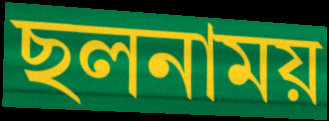
ছলনাময়